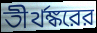
তীর্থঙ্করের